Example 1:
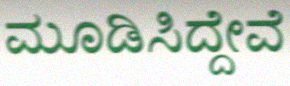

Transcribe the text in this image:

ಮೂಡಿಸಿದ್ದೇವೆ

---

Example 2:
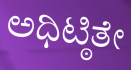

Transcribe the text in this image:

ಅಧಿಟ್ಠಿತೇ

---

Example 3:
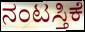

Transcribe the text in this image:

ನಂಟಸ್ತಿಕೆ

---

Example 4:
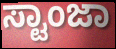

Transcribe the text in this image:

ಸ್ಟಾಂಜಾ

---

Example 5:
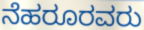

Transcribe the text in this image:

ನೆಹರೂರವರು